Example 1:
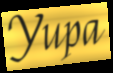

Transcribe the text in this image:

Yupa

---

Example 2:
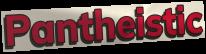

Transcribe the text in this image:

Pantheistic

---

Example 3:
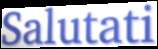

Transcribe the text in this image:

Salutati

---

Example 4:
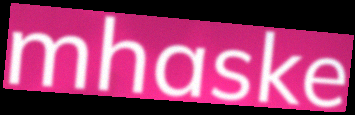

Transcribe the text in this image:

mhaske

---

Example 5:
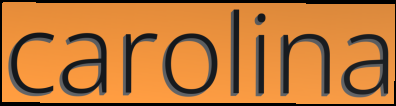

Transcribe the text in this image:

carolina